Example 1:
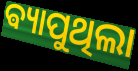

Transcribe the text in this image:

ଵ୍ୟାପୁଥିଲା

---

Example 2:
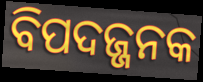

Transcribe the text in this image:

ବିପଦଜ୍ଜନକ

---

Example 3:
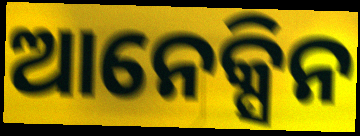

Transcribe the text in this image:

ଆନେକ୍ସିନ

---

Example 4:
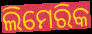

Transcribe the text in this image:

ଲିମେରିକ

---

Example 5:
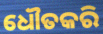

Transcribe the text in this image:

ଧୌତକରି